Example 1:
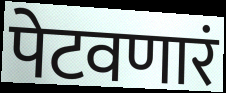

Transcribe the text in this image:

पेटवणारं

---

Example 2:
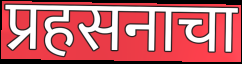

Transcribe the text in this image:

प्रहसनाचा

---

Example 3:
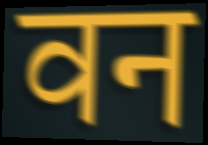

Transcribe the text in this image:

वन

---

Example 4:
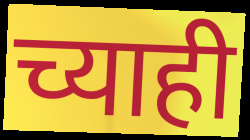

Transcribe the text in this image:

च्याही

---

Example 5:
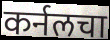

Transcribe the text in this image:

कर्नलचा